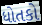
ધોતકો